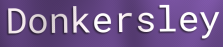
Donkersley